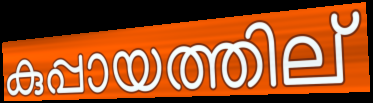
കുപ്പായത്തില്